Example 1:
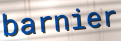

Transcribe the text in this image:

barnier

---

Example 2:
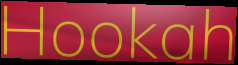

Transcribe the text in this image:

Hookah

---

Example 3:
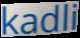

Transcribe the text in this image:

kadli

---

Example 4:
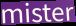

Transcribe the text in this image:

mister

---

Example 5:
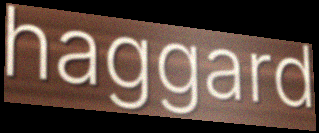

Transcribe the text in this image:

haggard